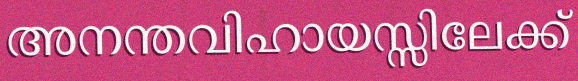
അനന്തവിഹായസ്സിലേക്ക്